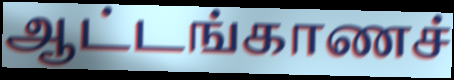
ஆட்டங்காணச்